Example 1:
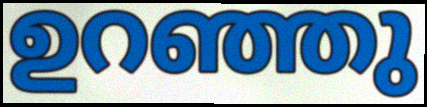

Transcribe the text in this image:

ഉറഞ്ഞു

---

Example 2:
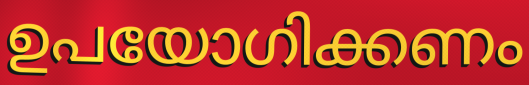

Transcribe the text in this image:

ഉപയോഗിക്കണം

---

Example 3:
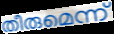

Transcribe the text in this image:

തീരുമെന്ന്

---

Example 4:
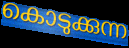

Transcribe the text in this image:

കൊടുക്കുന്ന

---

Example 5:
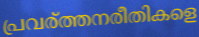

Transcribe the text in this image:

പ്രവര്ത്തനരീതികളെ